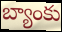
బ్యాంకు